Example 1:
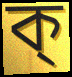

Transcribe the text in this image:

ক্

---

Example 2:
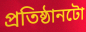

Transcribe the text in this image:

প্ৰতিষ্ঠানটো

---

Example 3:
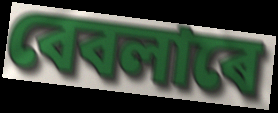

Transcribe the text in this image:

বেবলাৰে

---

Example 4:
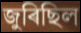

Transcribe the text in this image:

জুৰিছিল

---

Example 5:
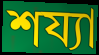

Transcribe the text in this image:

শয্যা